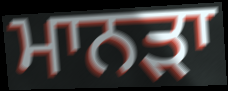
ਮਾਨੜਾ